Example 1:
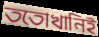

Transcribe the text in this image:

ততোখানিই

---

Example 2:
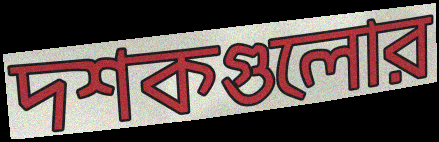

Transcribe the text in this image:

দশকগুলোর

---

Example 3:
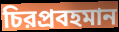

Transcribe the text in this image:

চিরপ্রবহমান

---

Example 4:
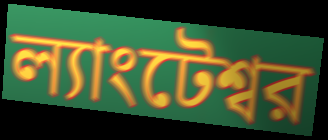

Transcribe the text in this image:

ল্যাংটেশ্বর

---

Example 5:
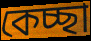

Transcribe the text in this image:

কেচ্ছা